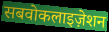
सबवोकलाइज़ेशन